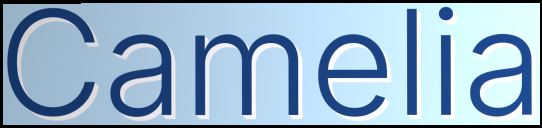
Camelia